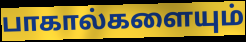
பாகால்களையும்